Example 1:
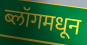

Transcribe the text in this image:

ब्लॉगमधून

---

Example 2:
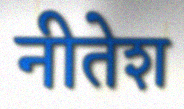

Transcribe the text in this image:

नीतेश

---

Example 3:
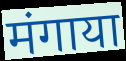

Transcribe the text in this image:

मंगाया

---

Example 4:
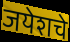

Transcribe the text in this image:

जयेशचे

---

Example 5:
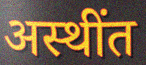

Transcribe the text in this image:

अस्थींत